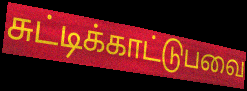
சுட்டிக்காட்டுபவை